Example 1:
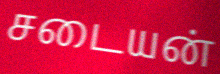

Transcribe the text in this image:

சடையன்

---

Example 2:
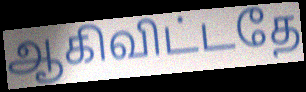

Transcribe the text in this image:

ஆகிவிட்டதே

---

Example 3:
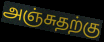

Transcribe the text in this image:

அஞ்சுதற்கு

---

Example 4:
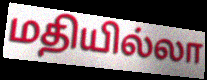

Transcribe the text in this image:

மதியில்லா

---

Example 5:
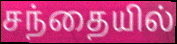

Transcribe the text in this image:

சந்தையில்